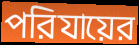
পরিযায়ের